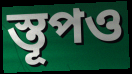
স্তূপও